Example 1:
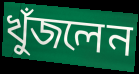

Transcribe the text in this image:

খুঁজলেন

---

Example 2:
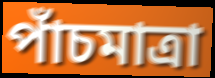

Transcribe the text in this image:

পাঁচমাত্রা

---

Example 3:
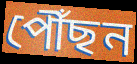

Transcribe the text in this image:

পৌঁছন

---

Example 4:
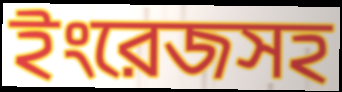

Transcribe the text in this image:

ইংরেজসহ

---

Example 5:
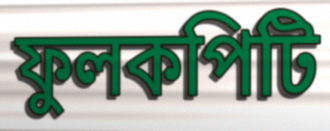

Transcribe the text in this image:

ফুলকপিটি